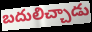
బదులిచ్చాడు